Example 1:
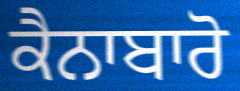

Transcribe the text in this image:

ਕੈਨਾਬਾਰੋ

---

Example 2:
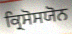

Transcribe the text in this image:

ਕ੍ਰਿਸੋਸਯੋਨ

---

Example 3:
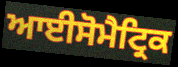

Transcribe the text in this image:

ਆਈਸੋਮੈਟ੍ਰਿਕ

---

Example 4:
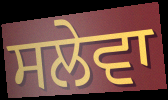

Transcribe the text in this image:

ਸਲੇਵਾ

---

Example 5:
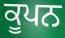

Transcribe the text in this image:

ਕੂਪਨ